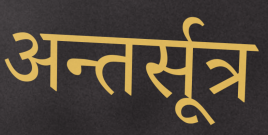
अन्तर्सूत्र